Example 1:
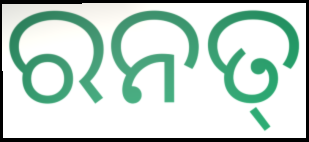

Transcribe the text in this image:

ରନତ୍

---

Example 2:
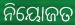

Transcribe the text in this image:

ନିୟୋଜତ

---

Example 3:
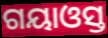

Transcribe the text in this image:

ଗୟାଓସ୍ତ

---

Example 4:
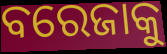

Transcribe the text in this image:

ବରେଜାକୁ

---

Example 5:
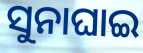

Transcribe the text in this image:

ସୁନାଘାଇ